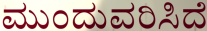
ಮುಂದುವರಿಸಿದೆ